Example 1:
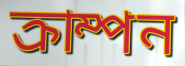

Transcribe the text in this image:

ক্রাম্পন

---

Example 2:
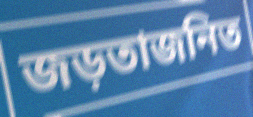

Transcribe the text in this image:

জড়তাজনিত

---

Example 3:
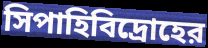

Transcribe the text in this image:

সিপাহিবিদ্রোহের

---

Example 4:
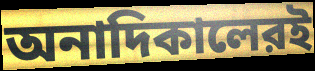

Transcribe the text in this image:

অনাদিকালেরই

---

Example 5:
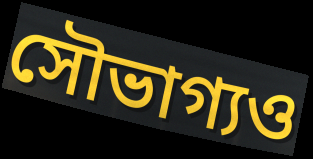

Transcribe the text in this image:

সৌভাগ্যও